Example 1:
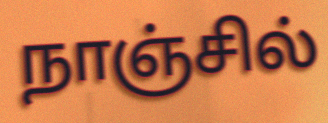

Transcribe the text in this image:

நாஞ்சில்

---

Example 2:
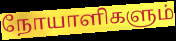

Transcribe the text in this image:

நோயாளிகளும்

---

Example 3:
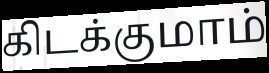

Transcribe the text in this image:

கிடக்குமாம்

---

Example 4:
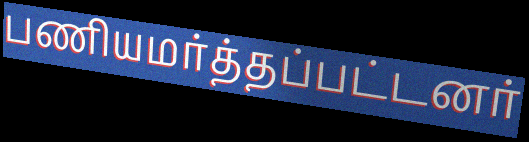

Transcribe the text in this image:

பணியமர்த்தப்பட்டனர்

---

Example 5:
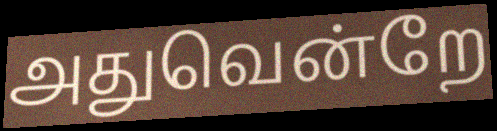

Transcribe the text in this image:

அதுவென்றே